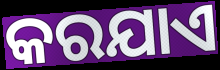
କରଯାଏ